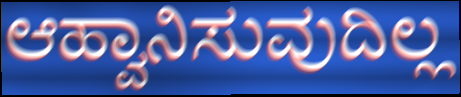
ಆಹ್ವಾನಿಸುವುದಿಲ್ಲ